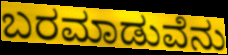
ಬರಮಾಡುವೆನು